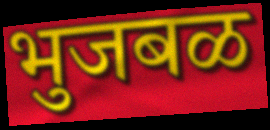
भुजबळ